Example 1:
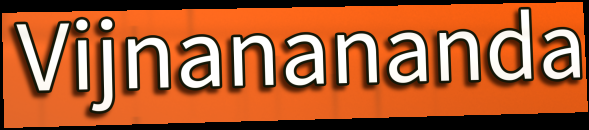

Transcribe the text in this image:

Vijnanananda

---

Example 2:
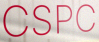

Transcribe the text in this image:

CSPC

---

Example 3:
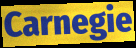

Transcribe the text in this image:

Carnegie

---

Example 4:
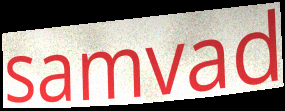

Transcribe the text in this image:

samvad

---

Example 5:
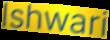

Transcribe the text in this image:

Ishwari